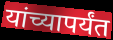
यांच्यापर्यंत